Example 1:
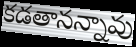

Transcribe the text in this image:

కడతానన్నావు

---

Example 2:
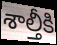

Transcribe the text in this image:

శాల్తీకి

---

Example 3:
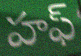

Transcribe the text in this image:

హఫ్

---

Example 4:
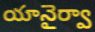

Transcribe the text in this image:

యానైర్వా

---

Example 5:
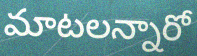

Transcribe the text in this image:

మాటలన్నారో